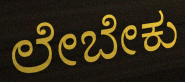
ಲೇಬೇಕು